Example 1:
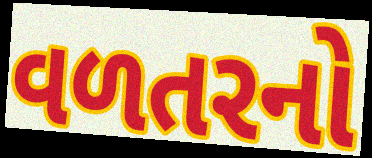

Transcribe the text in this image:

વળતરનો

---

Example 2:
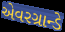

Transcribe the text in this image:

એવરગ્રાન્ડે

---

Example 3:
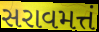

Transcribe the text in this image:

સરાવમત્તં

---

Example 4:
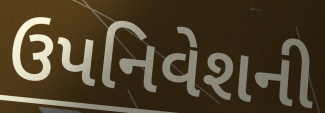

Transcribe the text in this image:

ઉપનિવેશની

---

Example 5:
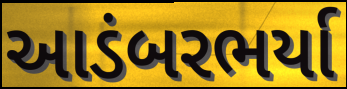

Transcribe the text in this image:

આડંબરભર્યા